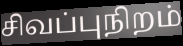
சிவப்புநிறம்